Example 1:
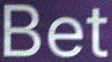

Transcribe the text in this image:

Bet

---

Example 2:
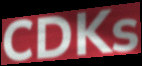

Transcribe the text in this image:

CDKs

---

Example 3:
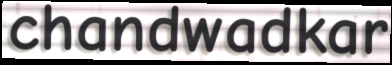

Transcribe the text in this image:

chandwadkar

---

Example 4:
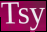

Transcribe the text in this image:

Tsy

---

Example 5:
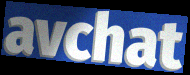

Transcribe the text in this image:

avchat